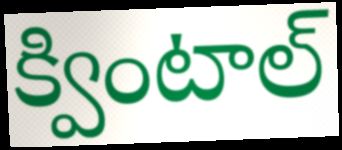
క్వింటాల్